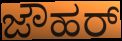
ಜೌಹರ್